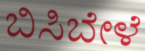
ಬಿಸಿಬೇಳೆ